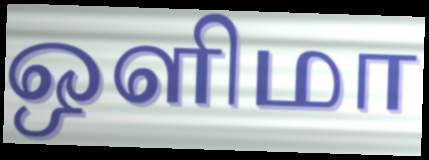
ஒளிமா